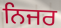
ਨਿਜਰ